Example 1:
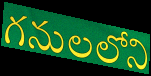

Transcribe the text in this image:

గనులలోని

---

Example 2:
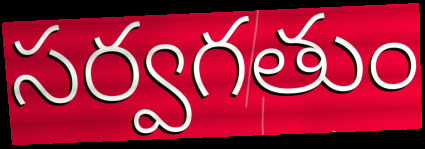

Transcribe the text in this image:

సర్వగతుం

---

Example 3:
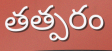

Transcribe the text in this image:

తత్పరం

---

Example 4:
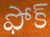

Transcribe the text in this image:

ఫోక్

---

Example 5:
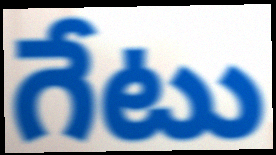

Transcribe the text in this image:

గేటు